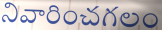
నివారించగలం